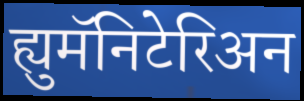
ह्युमॅनिटेरिअन